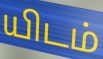
யிடம்